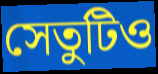
সেতুটিও